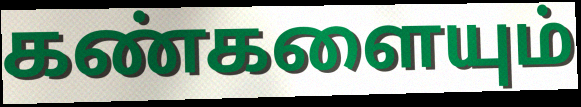
கண்களையும்